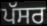
ਪੱਸਰ